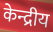
केन्‍द्रीय